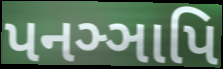
પનઞ્ઞાપિ